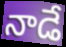
నాడే